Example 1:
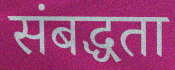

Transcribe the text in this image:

संबद्धता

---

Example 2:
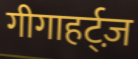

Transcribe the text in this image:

गीगाहर्ट्ज़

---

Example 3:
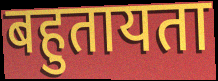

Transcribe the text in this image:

बहुतायता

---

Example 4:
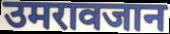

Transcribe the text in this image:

उमरावजान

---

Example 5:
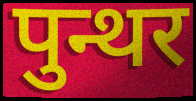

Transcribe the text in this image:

पुन्थर